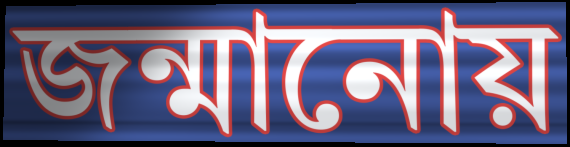
জন্মানোয়